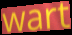
wart